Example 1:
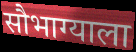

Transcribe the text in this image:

सौभाग्याला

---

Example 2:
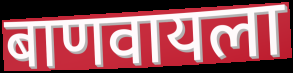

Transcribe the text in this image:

बाणवायला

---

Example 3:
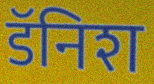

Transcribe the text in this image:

डॅनिश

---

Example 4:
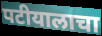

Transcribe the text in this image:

पटीयालाचा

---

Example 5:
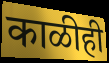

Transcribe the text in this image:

काळीही